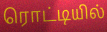
ரொட்டியில்